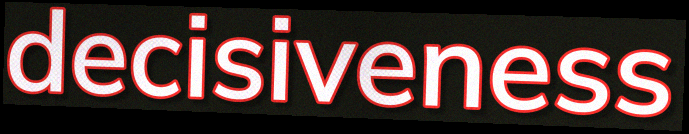
decisiveness